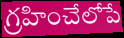
గ్రహించేలోపే